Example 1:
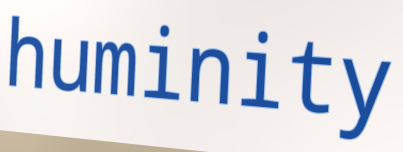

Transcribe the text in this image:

huminity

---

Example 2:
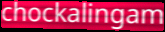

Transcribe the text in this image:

chockalingam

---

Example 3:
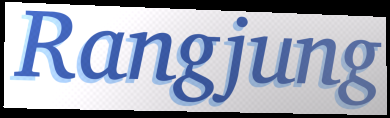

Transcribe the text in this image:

Rangjung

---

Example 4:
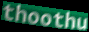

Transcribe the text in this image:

thoothu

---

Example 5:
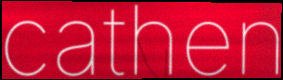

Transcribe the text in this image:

cathen